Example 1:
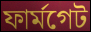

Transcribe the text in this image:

ফার্মগেট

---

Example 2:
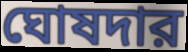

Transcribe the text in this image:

ঘোষদার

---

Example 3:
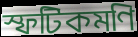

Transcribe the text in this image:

স্ফটিকমণি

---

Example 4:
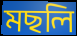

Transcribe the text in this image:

মছলি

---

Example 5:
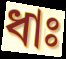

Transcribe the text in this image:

ধাঃ